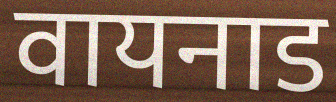
वायनाड